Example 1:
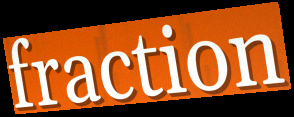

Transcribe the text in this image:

fraction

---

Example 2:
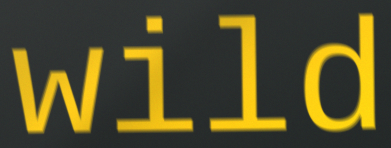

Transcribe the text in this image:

wild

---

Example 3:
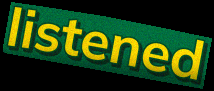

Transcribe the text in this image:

listened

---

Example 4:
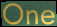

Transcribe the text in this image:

One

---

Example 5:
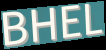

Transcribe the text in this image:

BHEL